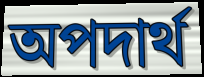
অপদার্থ